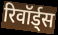
रिवॉर्ड्स